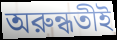
অরুন্ধতীই